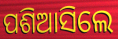
ପଶିଆସିଲେ